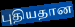
புதியதான